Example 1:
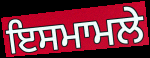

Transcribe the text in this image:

ਇਸਮਾਮਲੇ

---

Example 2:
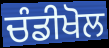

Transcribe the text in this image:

ਚੰਡੀਖੋਲ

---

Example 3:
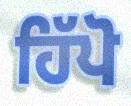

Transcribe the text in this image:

ਹਿੱਪੋ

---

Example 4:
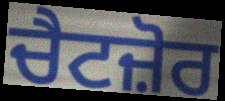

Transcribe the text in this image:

ਚੈਟਜ਼ੋਰ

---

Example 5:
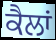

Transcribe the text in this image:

ਕੈਲਾਂ